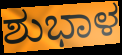
ಶುಭಾಳ